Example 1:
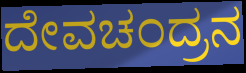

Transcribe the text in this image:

ದೇವಚಂದ್ರನ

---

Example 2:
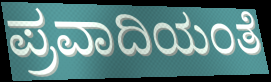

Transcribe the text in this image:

ಪ್ರವಾದಿಯಂತೆ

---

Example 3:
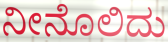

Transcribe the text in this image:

ನೀನೊಲಿದು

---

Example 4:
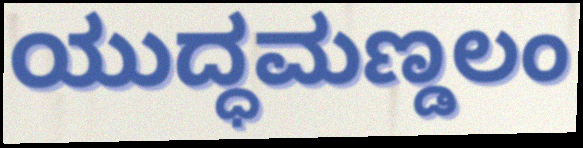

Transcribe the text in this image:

ಯುದ್ಧಮಣ್ಡಲಂ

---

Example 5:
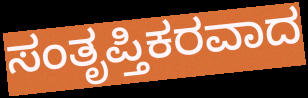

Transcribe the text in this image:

ಸಂತೃಪ್ತಿಕರವಾದ